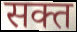
सक्त